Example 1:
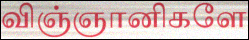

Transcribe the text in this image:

விஞ்ஞானிகளே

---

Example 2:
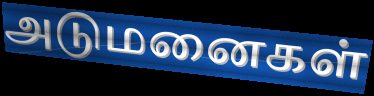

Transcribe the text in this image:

அடுமனைகள்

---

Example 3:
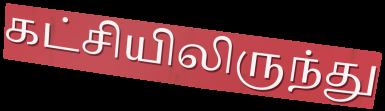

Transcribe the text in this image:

கட்சியிலிருந்து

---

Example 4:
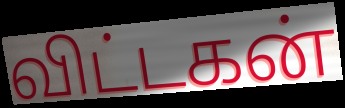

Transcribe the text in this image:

விட்டகன்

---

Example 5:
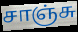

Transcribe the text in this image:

சாஞ்சு